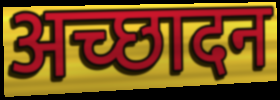
अच्छादन